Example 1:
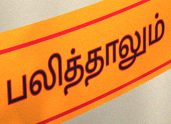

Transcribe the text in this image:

பலித்தாலும்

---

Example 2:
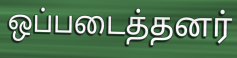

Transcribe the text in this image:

ஒப்படைத்தனர்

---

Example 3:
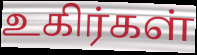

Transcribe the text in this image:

உகிர்கள்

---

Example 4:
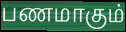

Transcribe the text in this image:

பணமாகும்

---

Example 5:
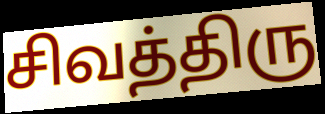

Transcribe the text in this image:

சிவத்திரு